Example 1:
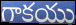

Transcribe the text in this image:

గాకయు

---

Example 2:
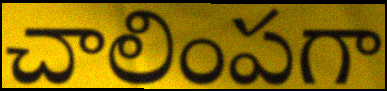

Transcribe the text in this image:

చాలింపగా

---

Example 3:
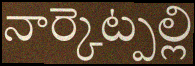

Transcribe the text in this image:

నార్కెట్పల్లి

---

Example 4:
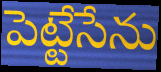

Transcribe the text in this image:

పెట్టేసేను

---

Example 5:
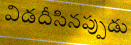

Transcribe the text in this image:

విడదీసినప్పుడు